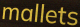
mallets